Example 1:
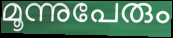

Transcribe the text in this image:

മൂന്നുപേരും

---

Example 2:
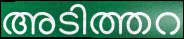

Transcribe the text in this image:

അടിത്തറ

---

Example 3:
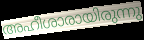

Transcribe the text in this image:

അഹീശാരായിരുന്നു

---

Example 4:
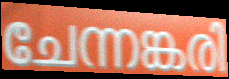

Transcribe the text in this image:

ചേന്നങ്കരി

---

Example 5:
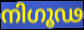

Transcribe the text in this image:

നിഗൂഢ